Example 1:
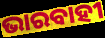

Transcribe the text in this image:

ଭାରବାହୀ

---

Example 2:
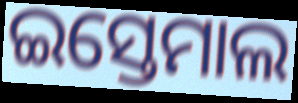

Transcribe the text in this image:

ଇସ୍ତେମାଲ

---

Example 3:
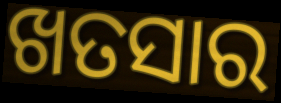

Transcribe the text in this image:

ଖତସାର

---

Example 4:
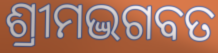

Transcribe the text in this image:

ଶ୍ରୀମଦ୍ଭଗବତ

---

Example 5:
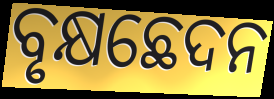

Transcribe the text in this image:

ବୃକ୍ଷଛେଦନ